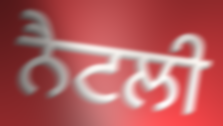
ਨੈਟਲੀ